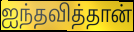
ஐந்தவித்தான்